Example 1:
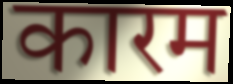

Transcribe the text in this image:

कारम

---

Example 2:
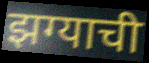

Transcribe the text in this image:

झग्याची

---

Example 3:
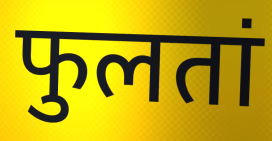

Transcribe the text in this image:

फुलतां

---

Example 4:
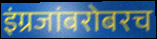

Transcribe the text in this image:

इंग्रजांबरोबरच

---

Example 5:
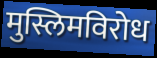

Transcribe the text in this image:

मुस्लिमविरोध